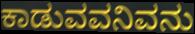
ಕಾಡುವವನಿವನು